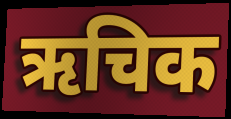
ऋचिक